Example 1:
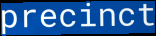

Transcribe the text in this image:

precinct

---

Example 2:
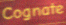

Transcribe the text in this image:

Cognate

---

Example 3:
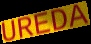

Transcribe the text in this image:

UREDA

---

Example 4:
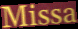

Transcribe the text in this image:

Missa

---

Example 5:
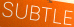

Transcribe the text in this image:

SUBTLE